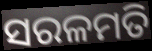
ସରଳମତି